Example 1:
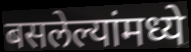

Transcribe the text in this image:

बसलेल्यांमध्ये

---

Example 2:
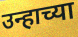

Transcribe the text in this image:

उन्हाच्या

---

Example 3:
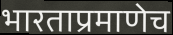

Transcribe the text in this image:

भारताप्रमाणेच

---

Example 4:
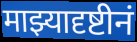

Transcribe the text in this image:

माझ्यादृष्टीनं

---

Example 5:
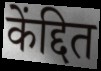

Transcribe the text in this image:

केंद्दित